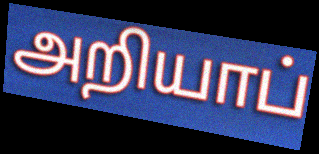
அறியாப்